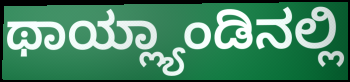
ಥಾಯ್ಲ್ಯಾಂಡಿನಲ್ಲಿ